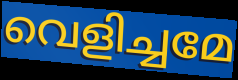
വെളിച്ചമേ